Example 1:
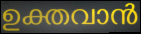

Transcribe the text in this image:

ഉക്തവാൻ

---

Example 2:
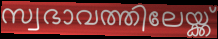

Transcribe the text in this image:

സ്വഭാവത്തിലേയ്ക്ക്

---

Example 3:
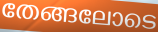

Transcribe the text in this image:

തേങ്ങലോടെ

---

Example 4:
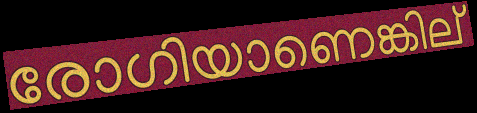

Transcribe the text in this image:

രോഗിയാണെങ്കില്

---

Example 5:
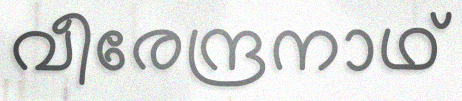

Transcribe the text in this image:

വീരേന്ദ്രനാഥ്